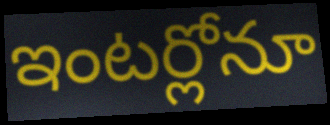
ఇంటర్లోనూ